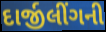
દાર્જીલીંગની